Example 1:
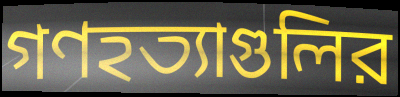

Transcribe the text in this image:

গণহত্যাগুলির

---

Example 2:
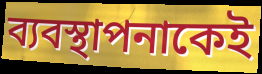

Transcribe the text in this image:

ব্যবস্থাপনাকেই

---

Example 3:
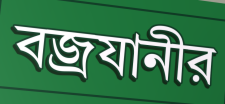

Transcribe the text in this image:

বজ্রযানীর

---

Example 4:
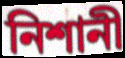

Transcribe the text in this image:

নিশানী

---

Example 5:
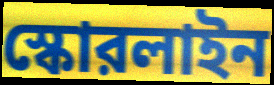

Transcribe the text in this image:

স্কোরলাইন